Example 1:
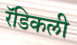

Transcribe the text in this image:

रॅडिकली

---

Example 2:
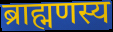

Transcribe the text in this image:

ब्राह्मणस्य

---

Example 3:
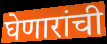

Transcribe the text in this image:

घेणारांची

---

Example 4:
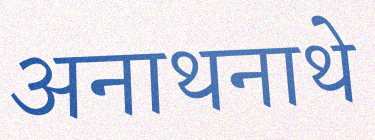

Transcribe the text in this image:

अनाथनाथे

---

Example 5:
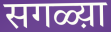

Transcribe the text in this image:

सगळ्य़ा